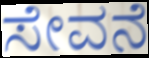
ಸೇವನೆ